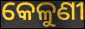
କେଳୁଣୀ